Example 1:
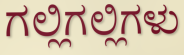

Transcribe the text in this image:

ಗಲ್ಲಿಗಲ್ಲಿಗಳು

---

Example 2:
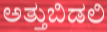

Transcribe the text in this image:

ಅತ್ತುಬಿಡಲಿ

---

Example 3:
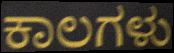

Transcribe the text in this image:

ಕಾಲಗಳು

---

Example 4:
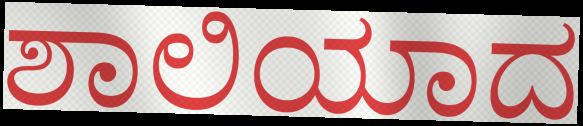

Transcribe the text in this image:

ಶಾಲಿಯಾದ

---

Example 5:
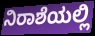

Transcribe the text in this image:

ನಿರಾಶೆಯಲ್ಲಿ